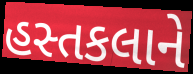
હસ્તકલાને